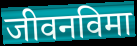
जीवनविमा